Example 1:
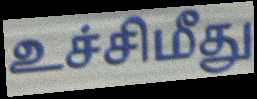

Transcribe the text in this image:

உச்சிமீது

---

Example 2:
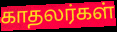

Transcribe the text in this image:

காதலர்கள்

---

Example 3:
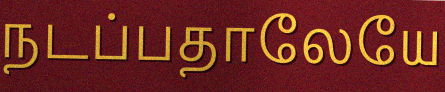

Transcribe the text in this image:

நடப்பதாலேயே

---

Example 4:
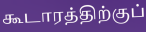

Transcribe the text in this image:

கூடாரத்திற்குப்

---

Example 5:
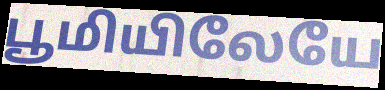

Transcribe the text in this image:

பூமியிலேயே